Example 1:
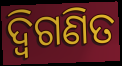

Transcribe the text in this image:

ଦ୍ୱିଗଣିତ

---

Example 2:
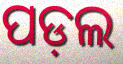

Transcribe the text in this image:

ପଡ଼ଲ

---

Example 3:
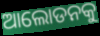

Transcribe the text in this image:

ଆଲୋଡନକୁ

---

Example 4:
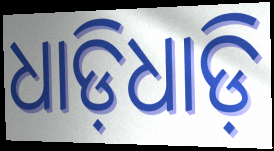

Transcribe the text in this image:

ଧାଡ଼ିଧାଡ଼ି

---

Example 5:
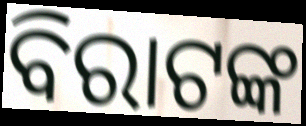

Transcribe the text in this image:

ବିରାଟଙ୍କ